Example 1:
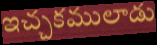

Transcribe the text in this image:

ఇచ్చకములాడు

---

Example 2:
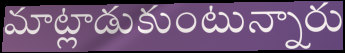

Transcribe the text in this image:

మాట్లాడుకుంటున్నారు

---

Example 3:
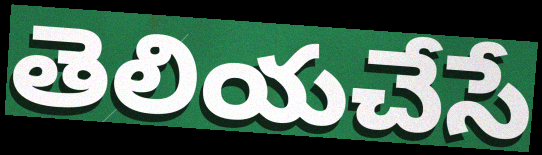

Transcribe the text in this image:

తెలియచేసే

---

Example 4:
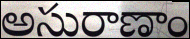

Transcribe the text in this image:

అసురాణాం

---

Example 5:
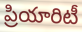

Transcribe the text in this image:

ప్రియారిటీ